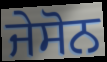
ਜੇਸੋਨ